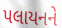
પલાયનને